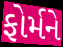
ફોર્મને